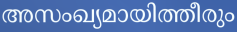
അസംഖ്യമായിത്തീരും